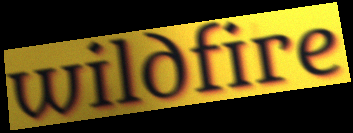
wildfire